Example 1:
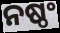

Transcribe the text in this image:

ନଷ୍ଠଂ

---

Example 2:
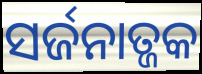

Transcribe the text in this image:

ସର୍ଜନାତ୍ଜକ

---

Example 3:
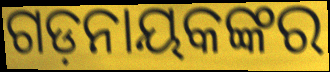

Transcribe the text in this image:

ଗଡ଼ନାୟକଙ୍କର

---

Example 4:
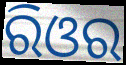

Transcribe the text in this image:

ରିଓର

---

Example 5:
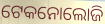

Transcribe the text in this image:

ଟେକନୋଲୋଜି